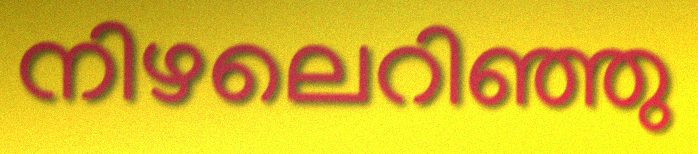
നിഴലെറിഞ്ഞു